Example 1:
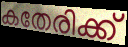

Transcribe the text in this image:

കതേരിക്ക്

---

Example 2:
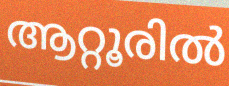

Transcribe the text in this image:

ആറ്റൂരിൽ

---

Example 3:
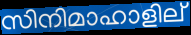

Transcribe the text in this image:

സിനിമാഹാളില്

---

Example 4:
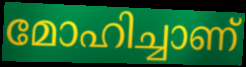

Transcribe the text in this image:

മോഹിച്ചാണ്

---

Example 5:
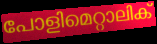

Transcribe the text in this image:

പോളിമെറ്റാലിക്